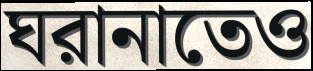
ঘরানাতেও